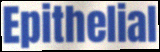
Epithelial